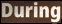
During